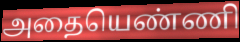
அதையெண்ணி